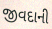
જીવદાની